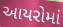
આયરોમાં